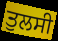
ਤੁਲਸੀ